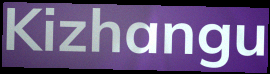
Kizhangu